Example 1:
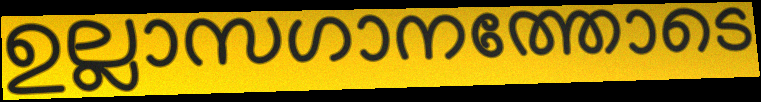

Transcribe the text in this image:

ഉല്ലാസഗാനത്തോടെ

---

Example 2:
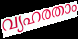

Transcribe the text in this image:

വ്യഹരതാം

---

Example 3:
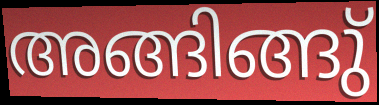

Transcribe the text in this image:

അങ്ങിങ്ങു്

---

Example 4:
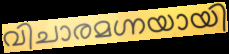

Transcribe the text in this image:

വിചാരമഗ്നയായി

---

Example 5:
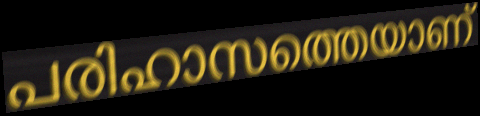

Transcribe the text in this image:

പരിഹാസത്തെയാണ്